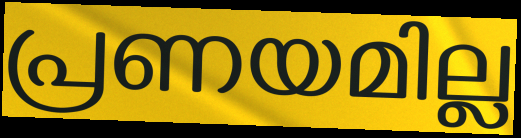
പ്രണയമില്ല